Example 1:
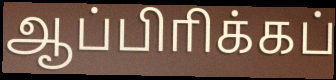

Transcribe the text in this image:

ஆப்பிரிக்கப்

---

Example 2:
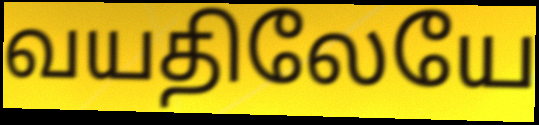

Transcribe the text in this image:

வயதிலேயே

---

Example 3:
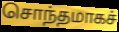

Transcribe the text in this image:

சொந்தமாகச்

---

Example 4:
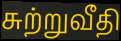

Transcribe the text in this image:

சுற்றுவீதி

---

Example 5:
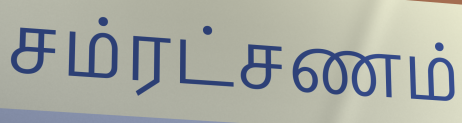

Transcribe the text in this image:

சம்ரட்சணம்